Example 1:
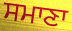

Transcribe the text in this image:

ਸਮਾਣਾ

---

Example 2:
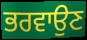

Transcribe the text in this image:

ਭਰਵਾਉਣ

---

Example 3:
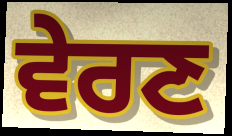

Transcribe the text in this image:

ਵੇਰਣ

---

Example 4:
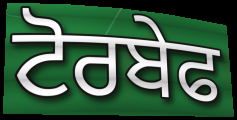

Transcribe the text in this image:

ਟੋਰਬੇਫ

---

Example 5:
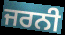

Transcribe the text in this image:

ਜਰਨੀ